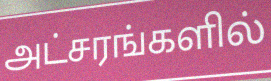
அட்சரங்களில்